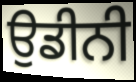
ਉਡੀਨੀ